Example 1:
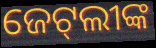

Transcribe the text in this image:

ଜେଟ୍‌ଲୀଙ୍କ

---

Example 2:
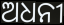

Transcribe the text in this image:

ଅଧନୀ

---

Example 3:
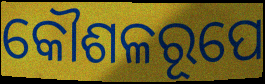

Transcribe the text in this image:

କୌଶଳରୂପେ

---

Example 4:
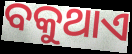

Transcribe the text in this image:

ବକୁଥାଏ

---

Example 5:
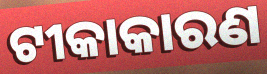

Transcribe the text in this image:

ଟୀକାକାରଣ